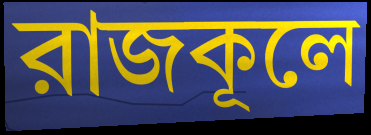
রাজকূলে